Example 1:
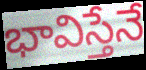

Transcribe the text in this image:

భావిస్తేనే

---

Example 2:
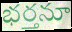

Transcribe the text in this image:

భర్తనూ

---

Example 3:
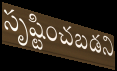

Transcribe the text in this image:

సృష్టించబడని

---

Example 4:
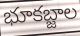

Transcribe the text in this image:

భూకబ్జాల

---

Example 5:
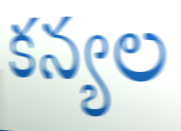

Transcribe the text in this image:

కన్యల